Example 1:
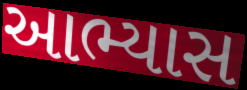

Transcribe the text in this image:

આભ્યાસ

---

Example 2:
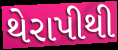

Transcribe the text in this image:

થેરાપીથી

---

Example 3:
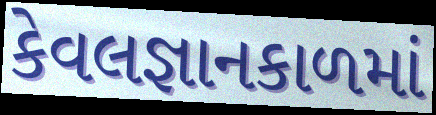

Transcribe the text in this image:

કેવલજ્ઞાનકાળમાં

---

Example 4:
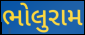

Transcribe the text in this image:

ભોલુરામ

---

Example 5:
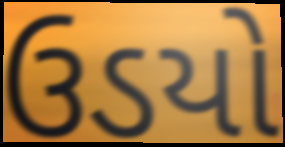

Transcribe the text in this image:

ઉડયો